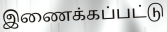
இணைக்கப்பட்டு